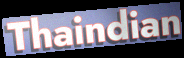
Thaindian